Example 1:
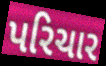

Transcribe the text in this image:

પરિચાર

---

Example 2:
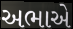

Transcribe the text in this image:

અભાએ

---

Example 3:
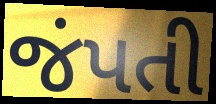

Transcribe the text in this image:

જંપતી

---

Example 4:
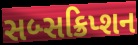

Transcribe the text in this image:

સબ્સક્રિપ્શન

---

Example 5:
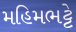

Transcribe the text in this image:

મહિમભટ્ટે